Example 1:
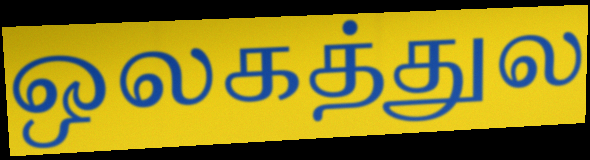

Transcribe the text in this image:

ஒலகத்துல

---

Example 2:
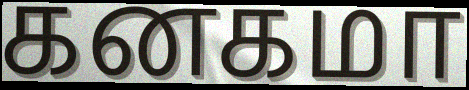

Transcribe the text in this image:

கனகமா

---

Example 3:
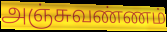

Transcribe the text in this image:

அஞ்சுவண்ணம்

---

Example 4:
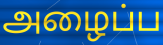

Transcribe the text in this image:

அழைப்ப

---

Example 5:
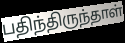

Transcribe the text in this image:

பதிந்திருந்தாள்